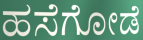
ಹಸೆಗೋಡೆ